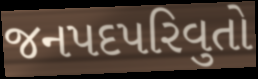
જનપદપરિવુતો